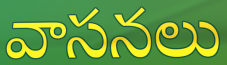
వాసనలు